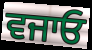
ਵਜਾਓ